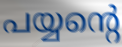
പയ്യന്റെ